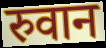
रुवान